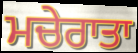
ਮਚੇਰਾਤਾ